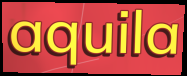
aquila